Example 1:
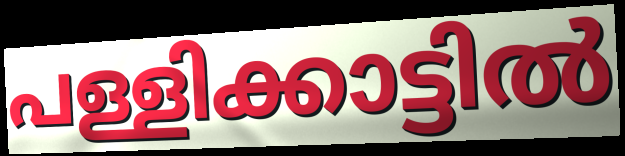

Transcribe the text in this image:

പള്ളിക്കാട്ടിൽ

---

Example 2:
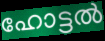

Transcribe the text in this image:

ഹോട്ടൽ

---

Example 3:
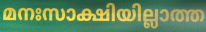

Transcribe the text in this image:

മനഃസാക്ഷിയില്ലാത്ത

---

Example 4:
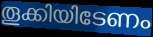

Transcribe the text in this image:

തൂക്കിയിടേണം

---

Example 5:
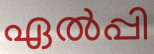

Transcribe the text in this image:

ഏൽപ്പി